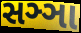
સઞ્ઞા